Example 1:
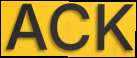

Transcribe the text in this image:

ACK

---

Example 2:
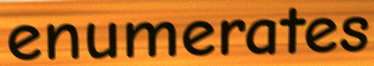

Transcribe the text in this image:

enumerates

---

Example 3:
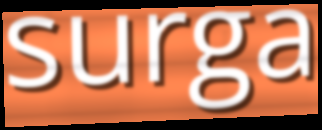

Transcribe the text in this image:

surga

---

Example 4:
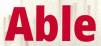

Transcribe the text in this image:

Able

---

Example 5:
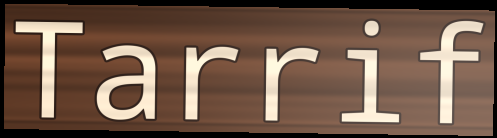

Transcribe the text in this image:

Tarrif